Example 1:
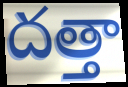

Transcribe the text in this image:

దత్తా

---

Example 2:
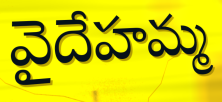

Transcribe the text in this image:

వైదేహమ్మ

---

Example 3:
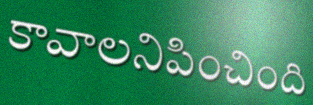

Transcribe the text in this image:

కావాలనిపించింది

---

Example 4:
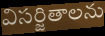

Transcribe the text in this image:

విసర్జితాలను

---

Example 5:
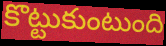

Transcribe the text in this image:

కొట్టుకుంటుంది